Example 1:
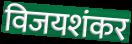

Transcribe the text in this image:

विजयशंकर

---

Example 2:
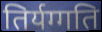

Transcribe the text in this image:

तिर्यग्गति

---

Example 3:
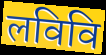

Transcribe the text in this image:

लविवि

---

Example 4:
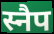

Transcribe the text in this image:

स्नैप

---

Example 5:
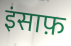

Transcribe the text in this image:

इंसाफ़